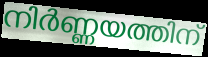
നിർണ്ണയത്തിന്